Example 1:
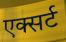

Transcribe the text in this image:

एक्सर्ट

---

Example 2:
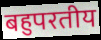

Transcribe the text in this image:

बहुपरतीय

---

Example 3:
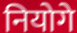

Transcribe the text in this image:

नियोगे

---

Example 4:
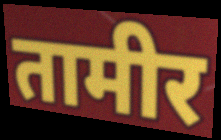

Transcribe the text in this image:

तामीर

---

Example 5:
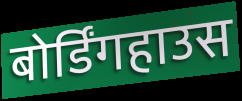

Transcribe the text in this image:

बोर्डिंगहाउस